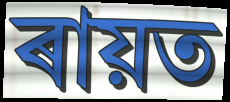
ৰায়ত